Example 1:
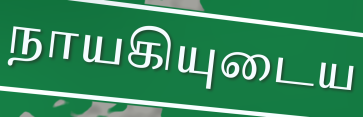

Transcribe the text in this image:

நாயகியுடைய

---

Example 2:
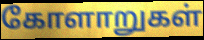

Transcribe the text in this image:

கோளாறுகள்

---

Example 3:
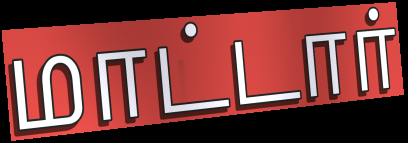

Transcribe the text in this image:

மாட்டார்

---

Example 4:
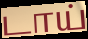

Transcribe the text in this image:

டாய்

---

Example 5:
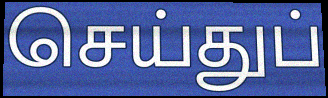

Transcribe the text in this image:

செய்துப்